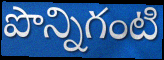
పొన్నిగంటి